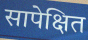
सापेक्षित